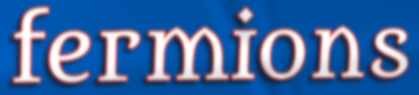
fermions